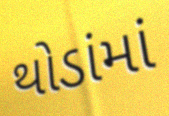
થોડાંમાં